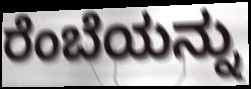
ರೆಂಬೆಯನ್ನು